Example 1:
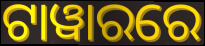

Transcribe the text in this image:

ଟାୱାରରେ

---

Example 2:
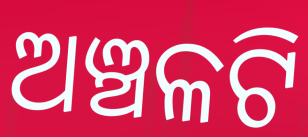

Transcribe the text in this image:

ଅଞ୍ଚଳଟି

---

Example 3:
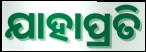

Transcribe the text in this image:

ଯାହାପ୍ରତି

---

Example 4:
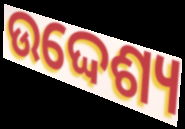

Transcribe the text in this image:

ଉଦ୍ଦେଶ୍ୟ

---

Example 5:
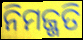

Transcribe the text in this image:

ନିମଜ୍ଜତି